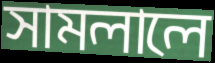
সামলালে